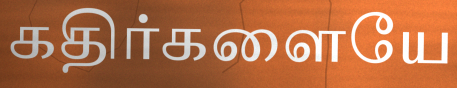
கதிர்களையே